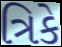
ત્રિકે